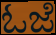
ಓಜೆ